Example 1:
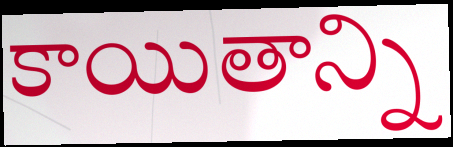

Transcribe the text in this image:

కాయితాన్ని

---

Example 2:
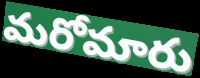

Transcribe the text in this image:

మరోమారు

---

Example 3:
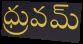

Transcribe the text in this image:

ధ్రువమ్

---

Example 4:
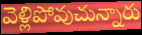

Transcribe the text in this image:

వెళ్లిపోవుచున్నారు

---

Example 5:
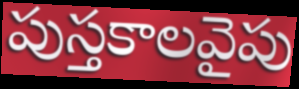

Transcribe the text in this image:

పుస్తకాలవైపు